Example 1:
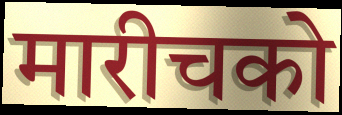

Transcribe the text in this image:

मारीचको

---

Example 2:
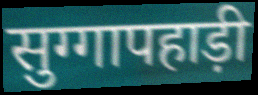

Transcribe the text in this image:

सुग्गापहाड़ी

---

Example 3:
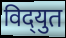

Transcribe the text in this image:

विद्‌युत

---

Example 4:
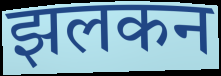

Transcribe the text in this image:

झलकन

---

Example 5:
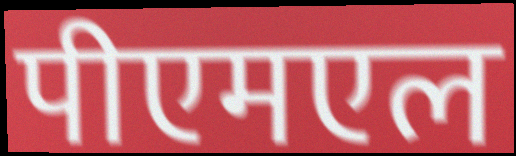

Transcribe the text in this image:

पीएमएल